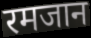
रमजान